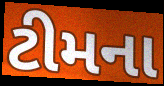
ટીમના